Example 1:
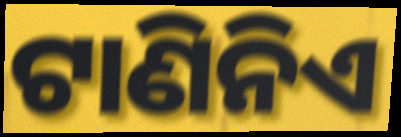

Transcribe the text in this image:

ଟାଣିନିଏ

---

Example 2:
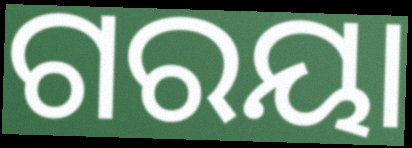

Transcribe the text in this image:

ଗରୟା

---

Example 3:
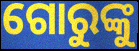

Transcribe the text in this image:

ଗୋରୁଙ୍କୁ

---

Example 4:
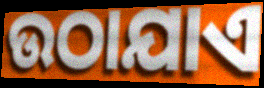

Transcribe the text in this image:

ଉଠାଯାଏ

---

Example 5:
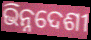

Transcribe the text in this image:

ଭିନ୍ନଦେଶୀ